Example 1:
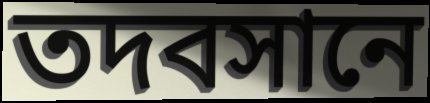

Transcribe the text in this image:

তদবসানে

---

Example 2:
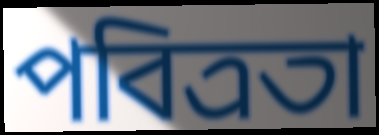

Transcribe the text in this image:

পবিত্রতা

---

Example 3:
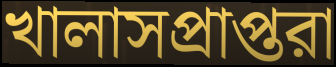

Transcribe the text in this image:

খালাসপ্রাপ্তরা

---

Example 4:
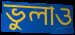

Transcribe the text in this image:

ভুলাও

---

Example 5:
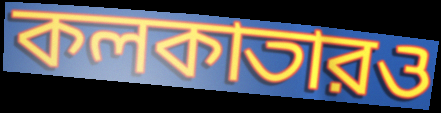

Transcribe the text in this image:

কলকাতারও